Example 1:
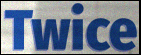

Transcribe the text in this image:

Twice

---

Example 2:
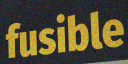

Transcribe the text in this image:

fusible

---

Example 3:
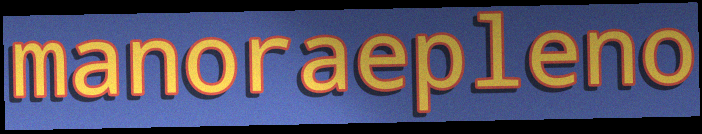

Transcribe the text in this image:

manoraepleno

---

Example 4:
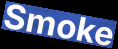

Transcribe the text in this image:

Smoke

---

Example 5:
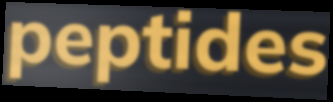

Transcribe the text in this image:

peptides